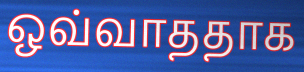
ஒவ்வாததாக